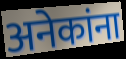
अनेकांना